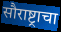
सौराष्ट्राचा